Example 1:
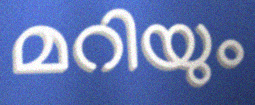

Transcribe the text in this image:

മറിയും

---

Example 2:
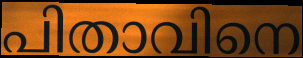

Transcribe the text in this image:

പിതാവിനെ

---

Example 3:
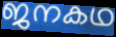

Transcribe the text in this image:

ജനകഥ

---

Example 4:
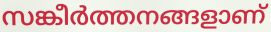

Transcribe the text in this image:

സങ്കീർത്തനങ്ങളാണ്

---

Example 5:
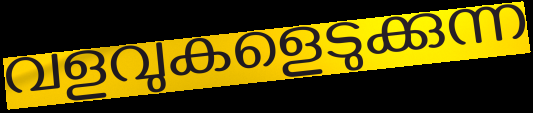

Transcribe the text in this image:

വളവുകളെടുക്കുന്ന